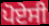
ਪੋਏਸੀ